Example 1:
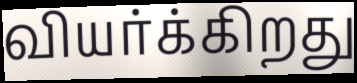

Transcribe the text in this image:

வியர்க்கிறது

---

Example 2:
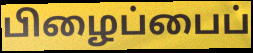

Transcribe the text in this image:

பிழைப்பைப்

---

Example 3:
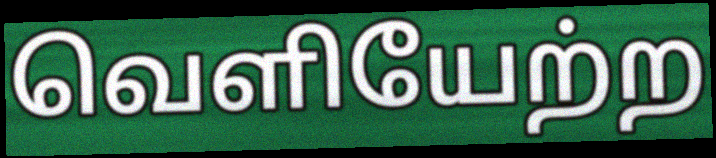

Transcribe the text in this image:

வெளியேற்ற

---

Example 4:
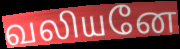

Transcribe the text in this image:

வலியனே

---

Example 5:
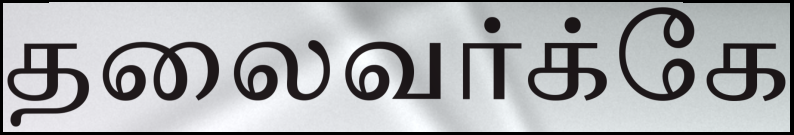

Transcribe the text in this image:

தலைவர்க்கே